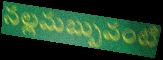
నల్లమబ్బువంటి